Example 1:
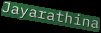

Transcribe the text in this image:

Jayarathina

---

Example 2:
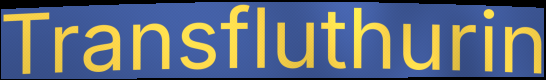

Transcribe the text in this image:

Transfluthurin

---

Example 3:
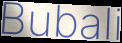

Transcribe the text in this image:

Bubali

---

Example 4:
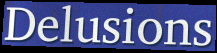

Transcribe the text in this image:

Delusions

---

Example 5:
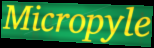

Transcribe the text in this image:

Micropyle